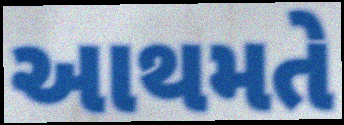
આથમતે